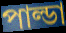
পাল্ডা